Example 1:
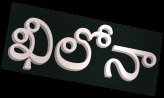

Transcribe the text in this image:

ఖిలోనా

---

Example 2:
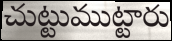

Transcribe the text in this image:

చుట్టుముట్టారు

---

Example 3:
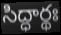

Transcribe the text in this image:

సిద్ధార్థః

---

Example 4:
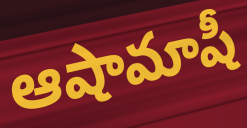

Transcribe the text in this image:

ఆషామాషీ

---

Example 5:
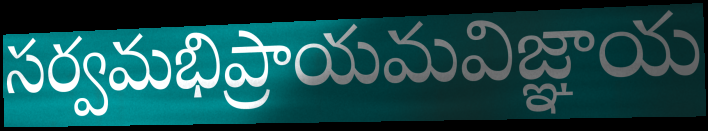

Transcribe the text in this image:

సర్వమభిప్రాయమవిజ్ఞాయ